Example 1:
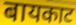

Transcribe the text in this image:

बायकाट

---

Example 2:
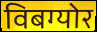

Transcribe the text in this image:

विबग्योर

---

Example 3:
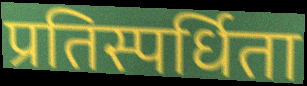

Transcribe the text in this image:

प्रतिस्पर्धिता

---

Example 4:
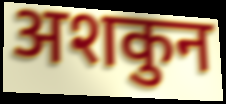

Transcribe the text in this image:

अशकुन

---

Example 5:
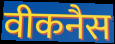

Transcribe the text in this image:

वीकनैस